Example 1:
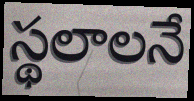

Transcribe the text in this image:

స్థలాలనే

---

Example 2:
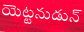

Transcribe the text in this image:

యెట్టనుడున్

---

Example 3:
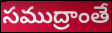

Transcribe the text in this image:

సముద్రాంతే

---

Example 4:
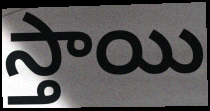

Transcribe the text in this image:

స్తాయి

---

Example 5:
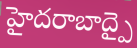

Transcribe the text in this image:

హైదరాబాద్పై